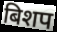
बिशप